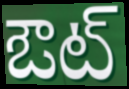
ఔట్